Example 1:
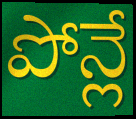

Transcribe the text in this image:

పోన్లే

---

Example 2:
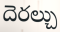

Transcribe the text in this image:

దెరల్చు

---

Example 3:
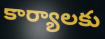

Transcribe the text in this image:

కార్యాలకు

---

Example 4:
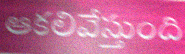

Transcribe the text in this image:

ఆకలివేస్తుంది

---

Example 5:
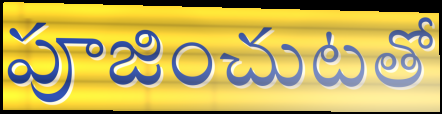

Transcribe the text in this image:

పూజించుటతో